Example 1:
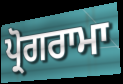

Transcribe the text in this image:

ਪ੍ਰੋਗਰਾਮਾ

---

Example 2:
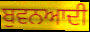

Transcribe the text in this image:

ਬੁਵਨਆਦੀ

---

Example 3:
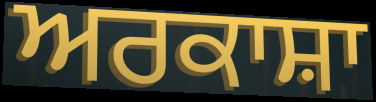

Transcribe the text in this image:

ਅਰਕਾਸ਼ਾ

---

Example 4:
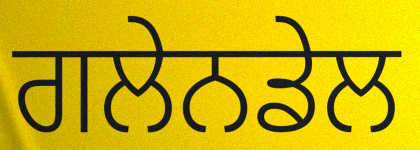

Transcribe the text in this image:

ਗਲੇਨਡੇਲ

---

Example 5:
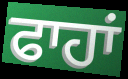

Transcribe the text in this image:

ਫਾਹਾਂ